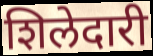
शिलेदारी